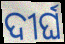
ଦୀର୍ଘ